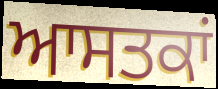
ਆਸਤਕਾਂ